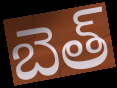
బెత్